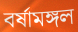
বর্ষামঙ্গল